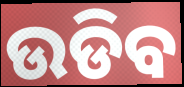
ଉଡିବ